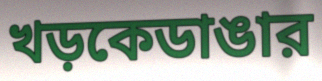
খড়কেডাঙার